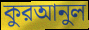
কুরআনুল